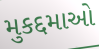
મુકદ્દમાઓ